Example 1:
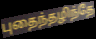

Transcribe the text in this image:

புதைந்தழிந்தே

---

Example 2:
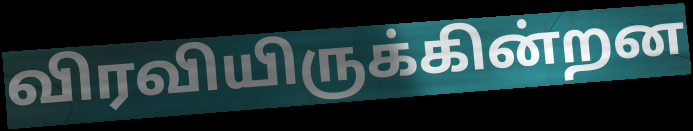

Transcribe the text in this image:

விரவியிருக்கின்றன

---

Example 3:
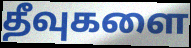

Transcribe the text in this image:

தீவுகளை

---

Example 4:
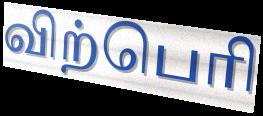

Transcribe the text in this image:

விற்பெரி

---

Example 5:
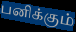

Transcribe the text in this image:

பனிக்கும்